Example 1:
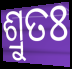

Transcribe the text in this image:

ଶ୍ରୁତଃ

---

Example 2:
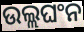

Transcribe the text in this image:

ଉଲ୍ଲଘଂନ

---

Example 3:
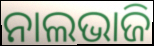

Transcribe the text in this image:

ନାଲଭାଜି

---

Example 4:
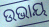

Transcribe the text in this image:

ଉଭାୟ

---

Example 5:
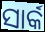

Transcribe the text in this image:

ସାର୍କ